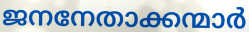
ജനനേതാക്കന്മാർ